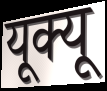
यूक्यू